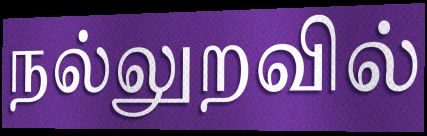
நல்லுறவில்